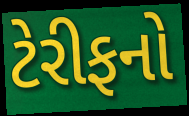
ટેરીફનો